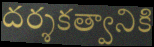
దర్శకత్వానికి